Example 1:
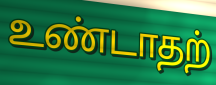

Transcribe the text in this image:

உண்டாதற்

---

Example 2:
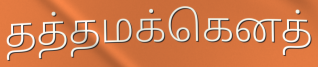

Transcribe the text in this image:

தத்தமக்கெனத்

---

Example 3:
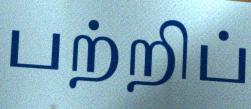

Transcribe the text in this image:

பற்றிப்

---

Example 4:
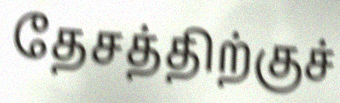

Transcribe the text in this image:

தேசத்திற்குச்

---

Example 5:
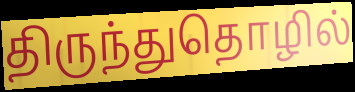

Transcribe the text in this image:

திருந்துதொழில்